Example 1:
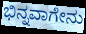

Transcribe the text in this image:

ಭಿನ್ನವಾಗೇನು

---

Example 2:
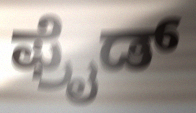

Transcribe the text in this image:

ಫ್ರೈಡ್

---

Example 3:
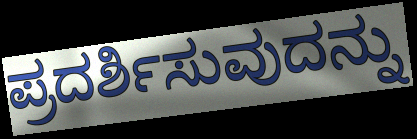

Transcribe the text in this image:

ಪ್ರದರ್ಶಿಸುವುದನ್ನು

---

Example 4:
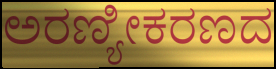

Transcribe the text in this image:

ಅರಣ್ಯೀಕರಣದ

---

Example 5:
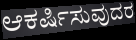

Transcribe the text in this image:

ಆಕರ್ಷಿಸುವುದರ